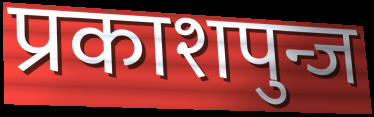
प्रकाशपुन्ज